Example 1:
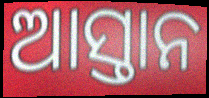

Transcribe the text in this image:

ଆସ୍ତାନ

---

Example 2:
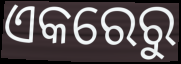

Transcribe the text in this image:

ଏକରେରୁ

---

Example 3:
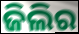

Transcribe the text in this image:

ଜିଲିର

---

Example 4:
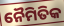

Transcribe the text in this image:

ନୈମିତିକ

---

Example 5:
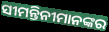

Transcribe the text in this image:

ସୀମନ୍ତିନୀମାନଙ୍କର